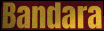
Bandara